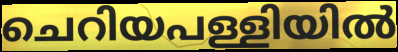
ചെറിയപള്ളിയിൽ